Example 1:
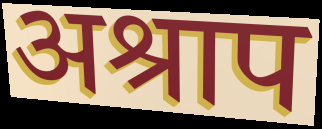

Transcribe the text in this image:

अश्राप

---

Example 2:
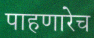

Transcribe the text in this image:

पाहणारेच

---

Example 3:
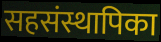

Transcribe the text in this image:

सहसंस्थापिका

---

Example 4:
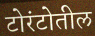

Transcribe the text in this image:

टोरंटोतील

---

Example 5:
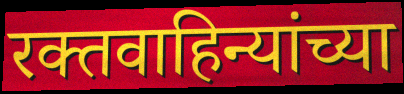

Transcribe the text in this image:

रक्तवाहिन्यांच्या